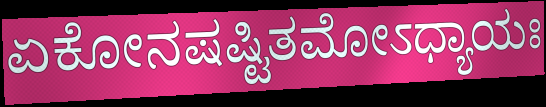
ಏಕೋನಷಷ್ಟಿತಮೋಽಧ್ಯಾಯಃ